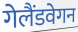
गेलैंडवेगन